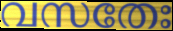
വസതേഃ